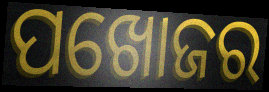
ପଖୋଜର